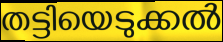
തട്ടിയെടുക്കൽ